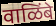
वाळिंबे